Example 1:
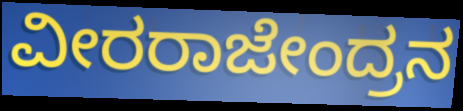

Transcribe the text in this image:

ವೀರರಾಜೇಂದ್ರನ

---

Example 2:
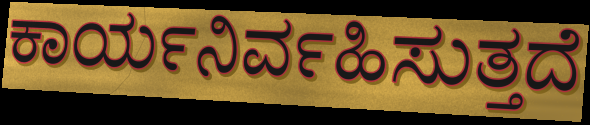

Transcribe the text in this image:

ಕಾರ್ಯನಿರ್ವಹಿಸುತ್ತದೆ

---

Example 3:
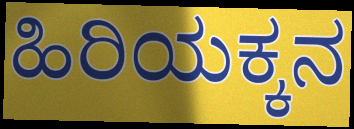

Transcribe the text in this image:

ಹಿರಿಯಕ್ಕನ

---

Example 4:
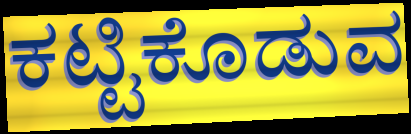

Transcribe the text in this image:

ಕಟ್ಟಿಕೊಡುವ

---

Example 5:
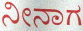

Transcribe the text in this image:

ನೀನಾಗ